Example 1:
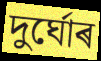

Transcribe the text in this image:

দুৰ্ঘোৰ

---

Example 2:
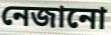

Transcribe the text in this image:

নেজানো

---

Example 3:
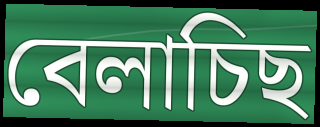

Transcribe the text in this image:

বেলাচিছ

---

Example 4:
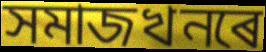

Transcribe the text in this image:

সমাজখনৰে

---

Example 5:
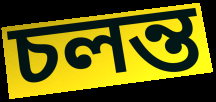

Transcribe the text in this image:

চলন্ত